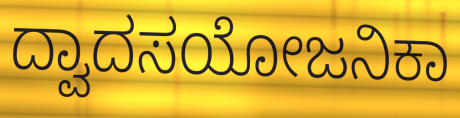
ದ್ವಾದಸಯೋಜನಿಕಾ